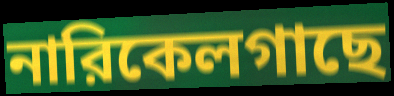
নারিকেলগাছে